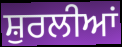
ਸ਼ੁਰਲੀਆਂ